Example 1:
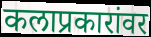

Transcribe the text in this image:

कलाप्रकारांवर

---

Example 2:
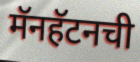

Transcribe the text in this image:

मॅनहॅटनची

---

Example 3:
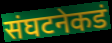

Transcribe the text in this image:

संघटनेकडं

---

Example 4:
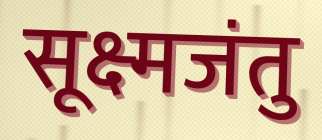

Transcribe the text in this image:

सूक्ष्मजंतु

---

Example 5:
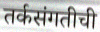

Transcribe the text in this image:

तर्कसंगतीची